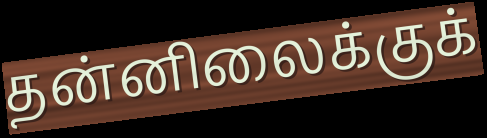
தன்னிலைக்குக்